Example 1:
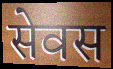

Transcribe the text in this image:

सेवस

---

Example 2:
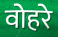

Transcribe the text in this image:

वोहरे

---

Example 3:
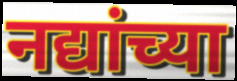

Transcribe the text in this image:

नद्यांच्या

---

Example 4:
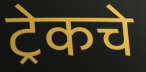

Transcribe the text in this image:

ट्रेकचे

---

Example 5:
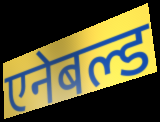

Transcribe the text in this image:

एनेबल्ड